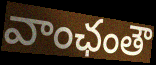
వాంఛంతౌ